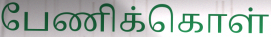
பேணிக்கொள்